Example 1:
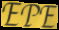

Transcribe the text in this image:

EPE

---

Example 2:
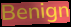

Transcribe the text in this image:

Benign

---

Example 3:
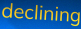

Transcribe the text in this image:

declining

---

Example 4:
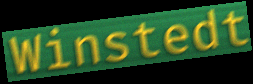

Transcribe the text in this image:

Winstedt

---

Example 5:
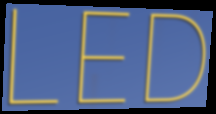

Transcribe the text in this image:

LED